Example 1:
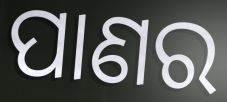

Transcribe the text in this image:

ପାଣର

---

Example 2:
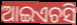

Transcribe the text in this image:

ଆଇଏଚସି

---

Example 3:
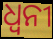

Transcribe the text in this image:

ଧ୍ବନୀ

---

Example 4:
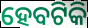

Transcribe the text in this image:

ହେବଟିକି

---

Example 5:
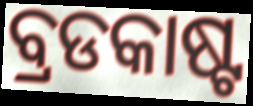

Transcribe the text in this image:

ବ୍ରଡକାଷ୍ଟ